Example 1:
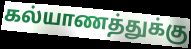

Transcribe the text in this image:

கல்யாணத்துக்கு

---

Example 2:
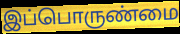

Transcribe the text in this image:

இப்பொருண்மை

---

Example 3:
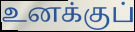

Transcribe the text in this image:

உனக்குப்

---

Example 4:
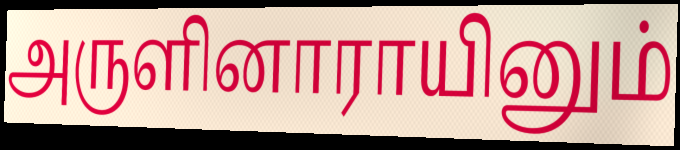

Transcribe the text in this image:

அருளினாராயினும்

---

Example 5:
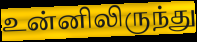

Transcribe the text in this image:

உன்னிலிருந்து